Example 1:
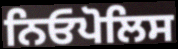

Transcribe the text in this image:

ਨਿਓਪੋਲਿਸ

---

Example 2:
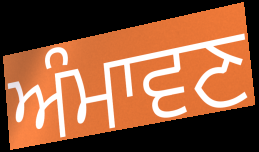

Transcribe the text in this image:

ਅੰਮਾਵਣ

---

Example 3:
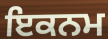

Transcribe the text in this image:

ਇਕਨਮ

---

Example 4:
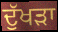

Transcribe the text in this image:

ਦੁੱਖਡ਼ਾ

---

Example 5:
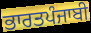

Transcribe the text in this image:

ਭਾਰਤਪੰਜਾਬੀ